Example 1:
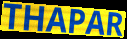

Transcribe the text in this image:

THAPAR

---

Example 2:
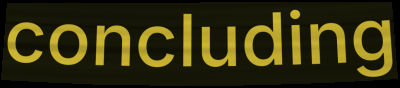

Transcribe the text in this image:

concluding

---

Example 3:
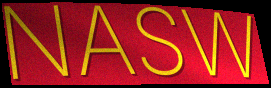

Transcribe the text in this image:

NASW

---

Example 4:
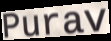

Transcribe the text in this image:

Purav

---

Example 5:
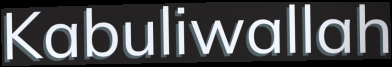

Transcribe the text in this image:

Kabuliwallah